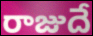
రాజుదే